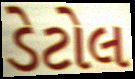
ડેટોલ